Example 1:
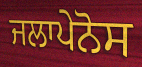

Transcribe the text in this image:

ਜਲਾਪੇਨੋਸ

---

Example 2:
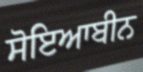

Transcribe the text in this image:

ਸੋਇਆਬੀਨ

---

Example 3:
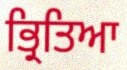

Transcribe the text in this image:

ਭ੍ਰਿਤਿਆ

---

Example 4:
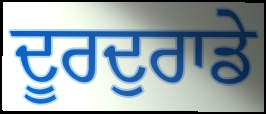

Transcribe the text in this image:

ਦੂਰਦੁਰਾਡੇ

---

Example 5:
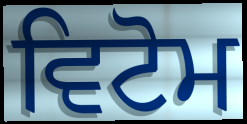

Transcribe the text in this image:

ਵਿਟੋਮ